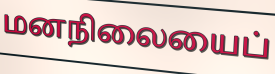
மனநிலையைப்